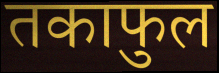
तकाफुल